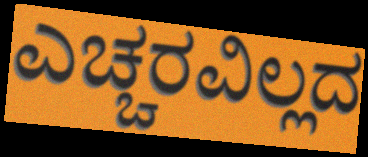
ಎಚ್ಚರವಿಲ್ಲದ